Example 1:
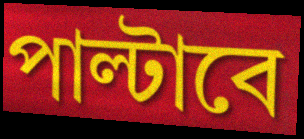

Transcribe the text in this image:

পাল্টাবে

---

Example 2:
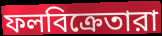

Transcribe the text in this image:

ফলবিক্রেতারা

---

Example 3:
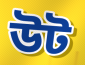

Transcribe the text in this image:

উট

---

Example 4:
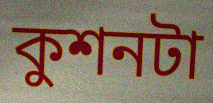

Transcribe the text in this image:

কুশনটা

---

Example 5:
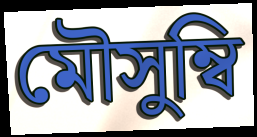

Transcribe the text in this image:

মৌসুম্বি